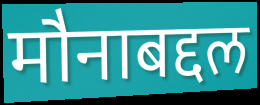
मौनाबद्दल